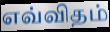
எவ்விதம்